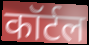
कॉर्टल